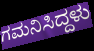
ಗಮನಿಸಿದ್ದಳು